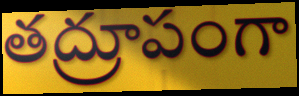
తద్రూపంగా